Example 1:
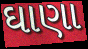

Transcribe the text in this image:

ઘાણા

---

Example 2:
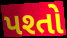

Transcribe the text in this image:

પશ્તો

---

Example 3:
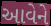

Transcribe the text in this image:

આવેને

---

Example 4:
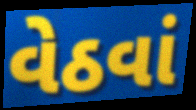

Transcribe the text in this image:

વેઠવાં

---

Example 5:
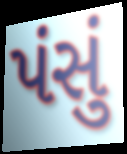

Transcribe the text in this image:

પંસું